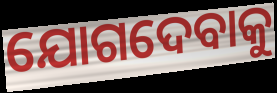
ଯୋଗଦେବାକୁ